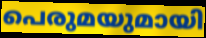
പെരുമയുമായി